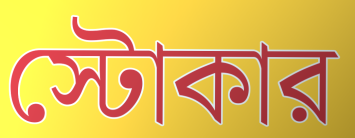
স্টোকার